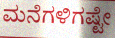
ಮನೆಗಳಿಗಷ್ಟೇ